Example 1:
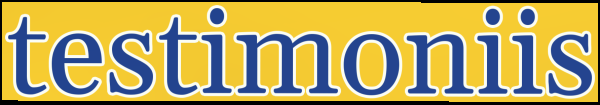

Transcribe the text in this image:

testimoniis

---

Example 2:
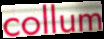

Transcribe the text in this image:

collum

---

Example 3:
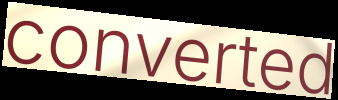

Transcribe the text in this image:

converted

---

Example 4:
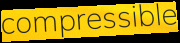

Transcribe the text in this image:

compressible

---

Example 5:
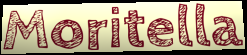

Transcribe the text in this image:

Moritella